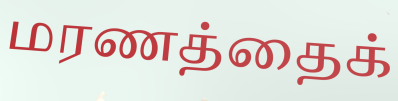
மரணத்தைக்